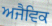
ਅਜੈਵਿਕ